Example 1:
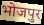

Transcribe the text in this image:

भोजपुर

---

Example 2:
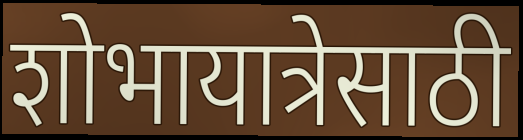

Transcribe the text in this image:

शोभायात्रेसाठी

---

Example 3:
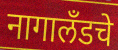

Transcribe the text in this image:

नागालँडचे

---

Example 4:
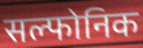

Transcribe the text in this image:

सल्फोनिक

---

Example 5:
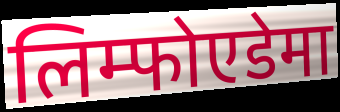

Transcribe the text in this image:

लिम्फोएडेमा